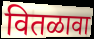
वितळावा